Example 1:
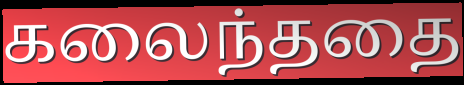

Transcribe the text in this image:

கலைந்ததை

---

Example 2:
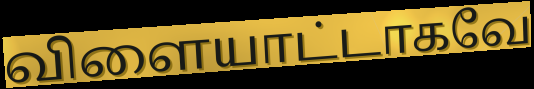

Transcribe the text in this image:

விளையாட்டாகவே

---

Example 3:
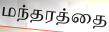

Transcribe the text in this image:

மந்தரத்தை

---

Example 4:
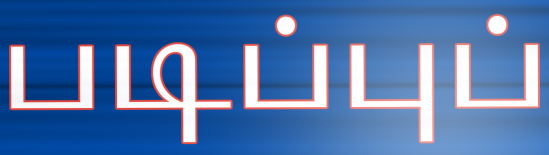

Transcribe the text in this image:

படிப்புப்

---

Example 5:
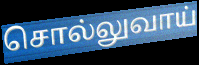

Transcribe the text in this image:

சொல்லுவாய்